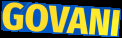
GOVANI